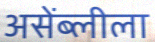
असेंब्लीला